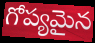
గోప్యమైన